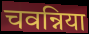
चवन्निया